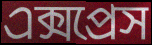
এক্সপ্রেস